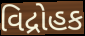
વિદ્રોહક